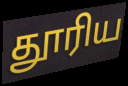
தூரிய